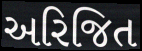
અરિજિત